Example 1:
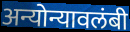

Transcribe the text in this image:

अन्योन्यावलंबी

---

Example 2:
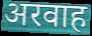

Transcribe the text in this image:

अरवाह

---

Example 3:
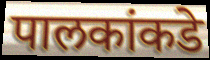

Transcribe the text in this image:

पालकांकडे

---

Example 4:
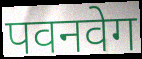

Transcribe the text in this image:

पवनवेग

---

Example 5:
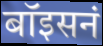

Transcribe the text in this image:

बॉइसनं